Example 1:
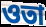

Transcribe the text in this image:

ওতা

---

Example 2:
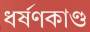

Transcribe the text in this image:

ধর্ষণকাণ্ড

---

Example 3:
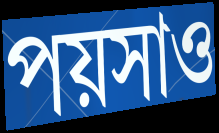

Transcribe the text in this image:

পয়সাও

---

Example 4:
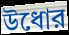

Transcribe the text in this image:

উধোর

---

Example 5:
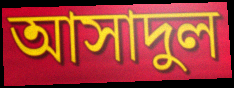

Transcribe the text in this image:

আসাদুল